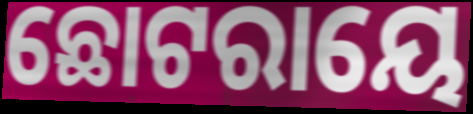
ଛୋଟରାୟେ